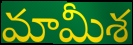
మామీశ